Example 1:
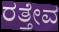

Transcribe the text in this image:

ರತ್ತೇವ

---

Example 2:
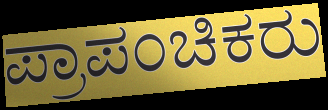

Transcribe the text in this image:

ಪ್ರಾಪಂಚಿಕರು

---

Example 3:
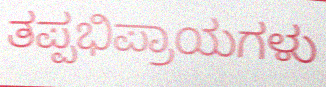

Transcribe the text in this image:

ತಪ್ಪಭಿಪ್ರಾಯಗಳು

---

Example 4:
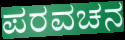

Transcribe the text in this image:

ಪರವಚನ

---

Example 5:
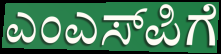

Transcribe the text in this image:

ಎಂಎಸ್‌ಪಿಗೆ